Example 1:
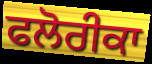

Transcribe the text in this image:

ਫਲੋਰੀਕਾ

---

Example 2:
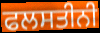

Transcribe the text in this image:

ਫਲਸਤੀਨੀ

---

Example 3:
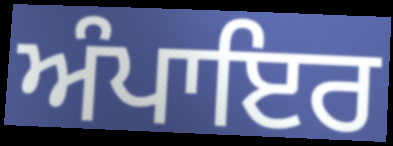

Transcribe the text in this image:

ਅੰਪਾਇਰ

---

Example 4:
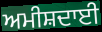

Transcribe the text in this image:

ਅਮੀਸ਼ਦਾਈ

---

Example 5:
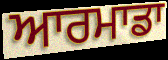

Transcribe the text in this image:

ਆਰਮਾਡਾ